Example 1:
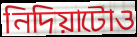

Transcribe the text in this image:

নিদিয়াটোও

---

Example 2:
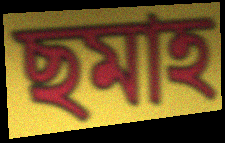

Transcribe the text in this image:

ছমাহ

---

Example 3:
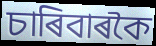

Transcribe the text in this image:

চাৰিবাৰকৈ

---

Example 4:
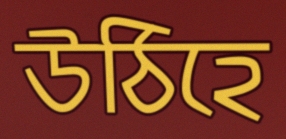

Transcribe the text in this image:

উঠিহে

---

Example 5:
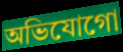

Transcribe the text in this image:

অভিযোগো